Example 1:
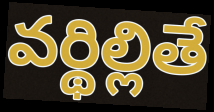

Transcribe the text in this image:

వర్థిల్లితే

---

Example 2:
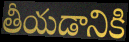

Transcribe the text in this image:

తీయడానికి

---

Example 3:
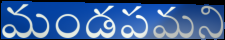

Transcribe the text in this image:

మండపమని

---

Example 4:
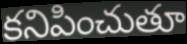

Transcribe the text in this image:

కనిపించుతూ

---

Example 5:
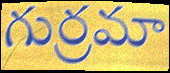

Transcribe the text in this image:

గుర్రమా